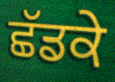
ਛੱਡਕੇ